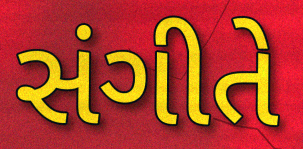
સંગીતે